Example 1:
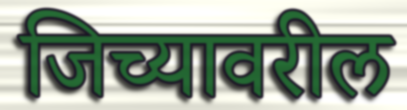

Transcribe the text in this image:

जिच्यावरील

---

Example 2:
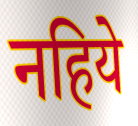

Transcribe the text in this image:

नहिये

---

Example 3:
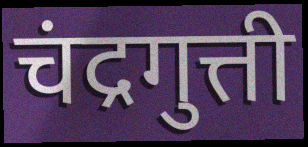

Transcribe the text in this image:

चंद्रगुत्ती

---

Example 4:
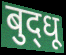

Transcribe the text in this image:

बुद्धू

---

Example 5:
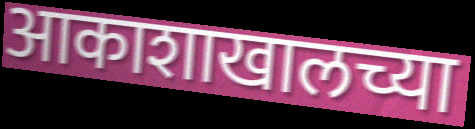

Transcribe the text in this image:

आकाशाखालच्या